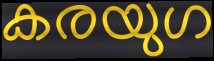
കരയുഗ